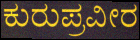
ಕುರುಪ್ರವೀರ